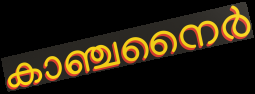
കാഞ്ചനൈർ